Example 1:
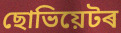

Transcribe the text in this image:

ছোভিয়েটৰ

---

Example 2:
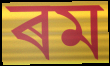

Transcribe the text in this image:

ৰম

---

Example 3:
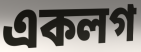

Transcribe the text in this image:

একলগ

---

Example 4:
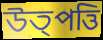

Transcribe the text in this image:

উত্পত্তি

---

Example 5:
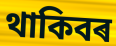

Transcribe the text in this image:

থাকিবৰ